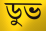
ডুভ